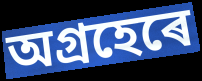
অগ্ৰহেৰে